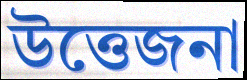
উত্তেজনা